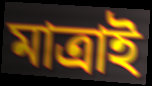
মাত্ৰাই